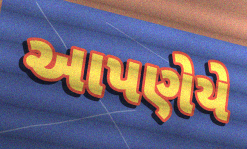
આપણેયે